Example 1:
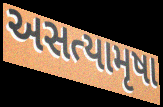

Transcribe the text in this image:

અસત્યામૃષા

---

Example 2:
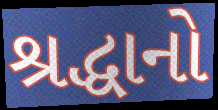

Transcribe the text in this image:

શ્રદ્ધાનો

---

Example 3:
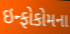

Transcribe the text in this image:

ઇન્ફોકોમના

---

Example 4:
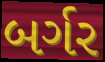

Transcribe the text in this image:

બર્ગર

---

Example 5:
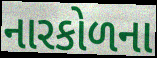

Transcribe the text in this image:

નારકોળના